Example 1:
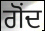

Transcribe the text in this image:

ਗੋਂਦ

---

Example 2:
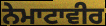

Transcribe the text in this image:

ਨੇਮਾਟਾਵੀਰ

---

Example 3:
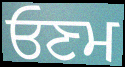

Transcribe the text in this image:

ਓਣਮ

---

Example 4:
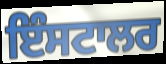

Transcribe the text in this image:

ਇੰਸਟਾਲਰ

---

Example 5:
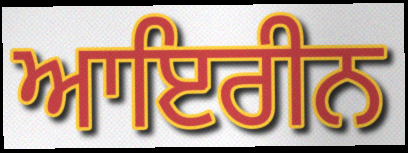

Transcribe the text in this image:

ਆਇਰੀਨ